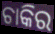
ଚାକିର